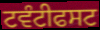
ਟਵੰਟੀਫਸਟ